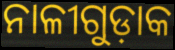
ନାଳୀଗୁଡ଼ାକ